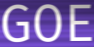
GOE